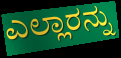
ಎಲ್ಲಾರನ್ನು